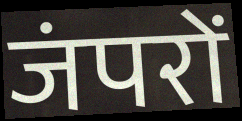
जंपरों